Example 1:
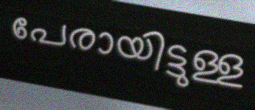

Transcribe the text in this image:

പേരായിട്ടുള്ള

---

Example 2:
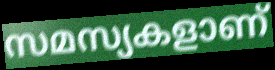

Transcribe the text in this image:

സമസ്യകളാണ്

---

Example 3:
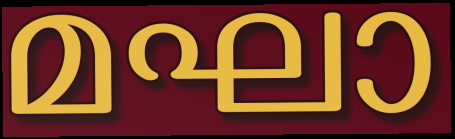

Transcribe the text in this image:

മഘാ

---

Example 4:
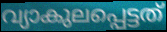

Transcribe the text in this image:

വ്യാകുലപ്പെട്ടത്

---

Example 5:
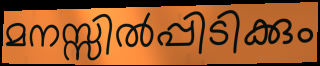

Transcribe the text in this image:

മനസ്സിൽപ്പിടിക്കും